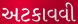
અટકાવવી